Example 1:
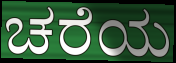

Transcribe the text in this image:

ಚರೆಯ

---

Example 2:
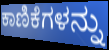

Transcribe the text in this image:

ಕಾಣಿಕೆಗಳನ್ನು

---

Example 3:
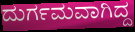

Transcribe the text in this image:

ದುರ್ಗಮವಾಗಿದ್ದ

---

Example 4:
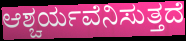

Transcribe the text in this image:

ಆಶ್ಚರ್ಯವೆನಿಸುತ್ತದೆ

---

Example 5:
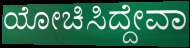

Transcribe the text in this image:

ಯೋಚಿಸಿದ್ದೇವಾ